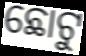
ଛୋଟୁ